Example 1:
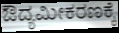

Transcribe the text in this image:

ಔದ್ಯಮೀಕರಣಕ್ಕೆ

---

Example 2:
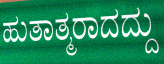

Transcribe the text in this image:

ಹುತಾತ್ಮರಾದದ್ದು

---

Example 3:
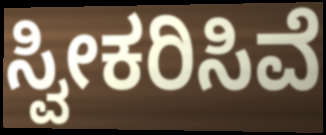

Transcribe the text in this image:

ಸ್ವೀಕರಿಸಿವೆ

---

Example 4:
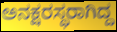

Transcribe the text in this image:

ಅನಕ್ಷರಸ್ಥರಾಗಿದ್ದ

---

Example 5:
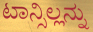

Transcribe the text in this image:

ಟಾನ್ಸಿಲ್ಲನ್ನು